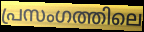
പ്രസംഗത്തിലെ